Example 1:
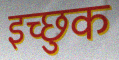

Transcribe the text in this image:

इच्‍छुक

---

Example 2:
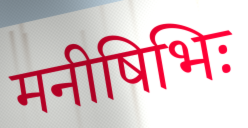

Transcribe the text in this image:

मनीषिभिः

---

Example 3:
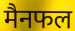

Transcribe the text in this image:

मैनफल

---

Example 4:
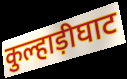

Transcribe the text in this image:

कुल्हाड़ीघाट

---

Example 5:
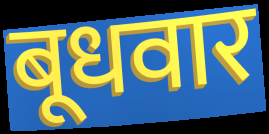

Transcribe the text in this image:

बूधवार